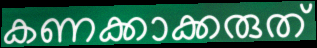
കണക്കാക്കരുത്